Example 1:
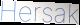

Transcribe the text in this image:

Hersak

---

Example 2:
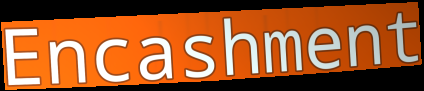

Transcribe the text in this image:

Encashment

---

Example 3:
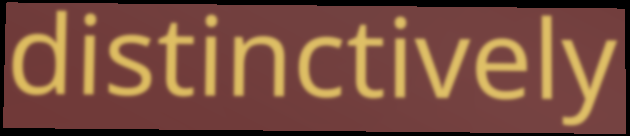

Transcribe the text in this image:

distinctively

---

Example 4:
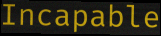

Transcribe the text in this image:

Incapable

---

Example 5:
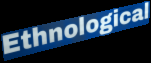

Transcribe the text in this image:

Ethnological